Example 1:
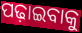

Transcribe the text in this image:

ପଢ଼ାଇବାକୁ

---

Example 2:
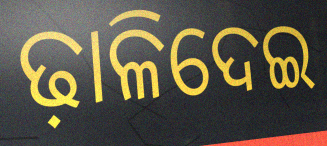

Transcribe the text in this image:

ଢ଼ାଳିଦେଇ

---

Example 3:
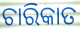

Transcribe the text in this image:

ଚାରିକାତ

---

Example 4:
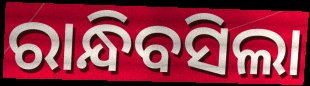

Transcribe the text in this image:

ରାନ୍ଧିବସିଲା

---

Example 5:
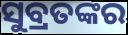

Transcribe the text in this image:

ସୁବ୍ରତଙ୍କର